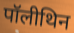
पॉलीथिन